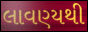
લાવણ્યથી